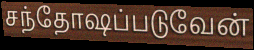
சந்தோஷப்படுவேன்